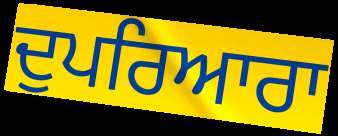
ਦੁਪਰਿਆਰਾ